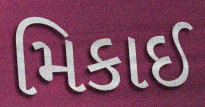
મિકાઈ